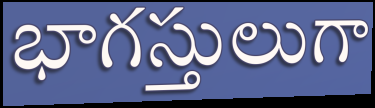
భాగస్తులుగా